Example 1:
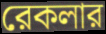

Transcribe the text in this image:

রেকলার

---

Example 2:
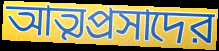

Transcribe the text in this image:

আত্মপ্রসাদের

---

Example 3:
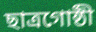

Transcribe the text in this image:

ছাত্রগোষ্ঠী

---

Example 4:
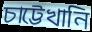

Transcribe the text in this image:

চাট্টেখানি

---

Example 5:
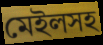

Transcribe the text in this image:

মেইলসহ